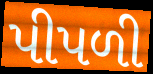
પીપળી